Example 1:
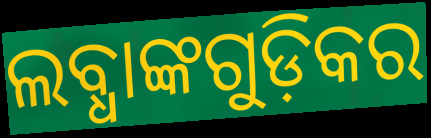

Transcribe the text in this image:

ଲବ୍ଧାଙ୍କଗୁଡ଼ିକର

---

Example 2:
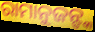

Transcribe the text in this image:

ରାମାନୁଜନ୍ଙ୍କ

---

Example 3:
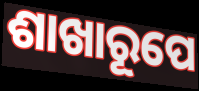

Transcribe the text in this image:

ଶାଖାରୂପେ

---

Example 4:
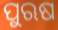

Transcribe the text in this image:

ପୁଋଷ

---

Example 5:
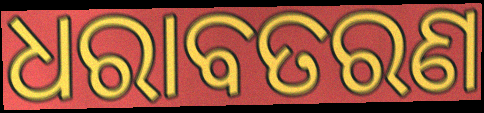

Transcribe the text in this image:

ଧରାବତରଣ